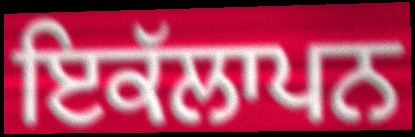
ਇਕੱਲਾਪਨ